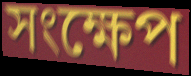
সংক্ষেপ